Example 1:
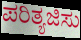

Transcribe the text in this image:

ಪರಿತ್ಯಜಿಸು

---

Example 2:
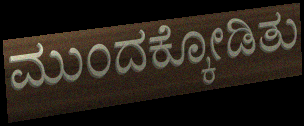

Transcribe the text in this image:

ಮುಂದಕ್ಕೋಡಿತು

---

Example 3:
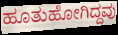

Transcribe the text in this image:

ಹೂತುಹೋಗಿದ್ದವು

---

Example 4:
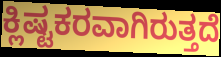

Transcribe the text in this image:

ಕ್ಲಿಷ್ಟಕರವಾಗಿರುತ್ತದೆ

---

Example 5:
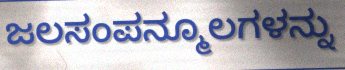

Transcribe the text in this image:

ಜಲಸಂಪನ್ಮೂಲಗಳನ್ನು